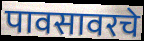
पावसावरचे